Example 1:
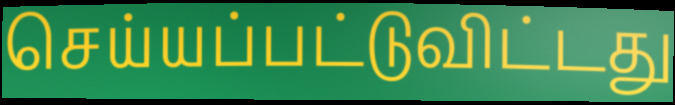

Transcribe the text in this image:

செய்யப்பட்டுவிட்டது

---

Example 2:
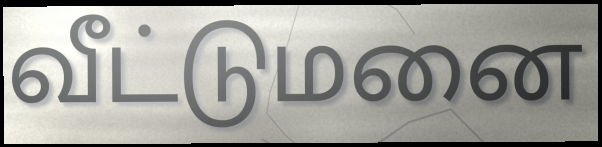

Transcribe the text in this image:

வீட்டுமனை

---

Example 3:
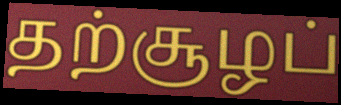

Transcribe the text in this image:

தற்சூழப்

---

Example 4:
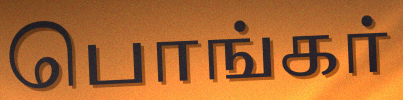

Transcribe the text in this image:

பொங்கர்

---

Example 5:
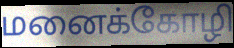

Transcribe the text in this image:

மனைக்கோழி